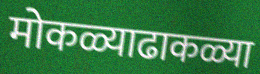
मोकळ्याढाकळ्या